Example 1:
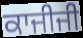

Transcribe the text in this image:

ਕਾਜੀਜੀ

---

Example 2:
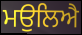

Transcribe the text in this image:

ਮਉਲਿਐ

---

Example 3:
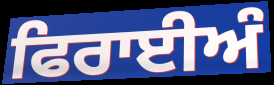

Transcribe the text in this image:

ਫਿਰਾਈਅੰ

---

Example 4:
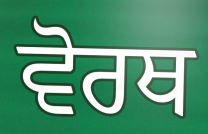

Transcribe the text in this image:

ਵੋਰਥ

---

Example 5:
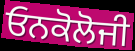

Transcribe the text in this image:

ਓਨਕੋਲੋਜੀ